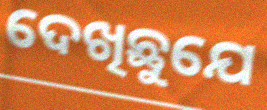
ଦେଖିଛୁଯେ